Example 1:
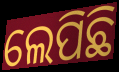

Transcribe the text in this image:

ଲେପିଛି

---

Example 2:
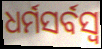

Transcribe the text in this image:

ଧର୍ମସର୍ବସ୍ୱ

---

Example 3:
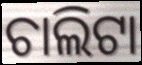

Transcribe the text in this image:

ଚାଲିଟା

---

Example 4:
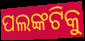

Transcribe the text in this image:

ପଲଙ୍କଟିକୁ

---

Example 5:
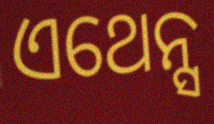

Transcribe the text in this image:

ଏଥେନ୍ସ